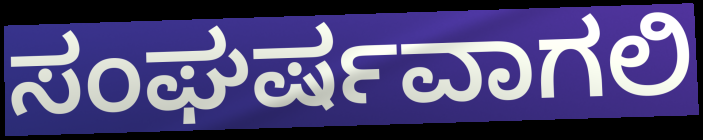
ಸಂಘರ್ಷವಾಗಲಿ